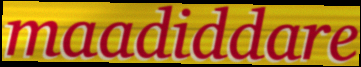
maadiddare